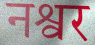
नश्वर